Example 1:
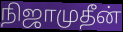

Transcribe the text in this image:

நிஜாமுதீன்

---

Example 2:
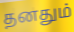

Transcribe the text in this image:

தனதும்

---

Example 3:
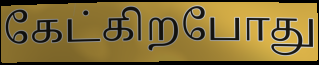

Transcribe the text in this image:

கேட்கிறபோது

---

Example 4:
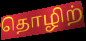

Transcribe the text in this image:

தொழிற்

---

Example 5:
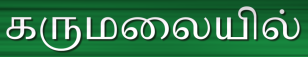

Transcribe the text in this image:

கருமலையில்